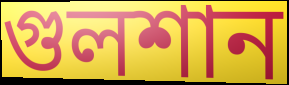
গুলশান